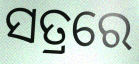
ସତ୍ରରେ